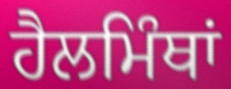
ਹੈਲਮਿੰਥਾਂ